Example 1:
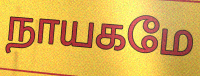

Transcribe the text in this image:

நாயகமே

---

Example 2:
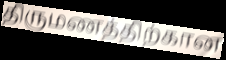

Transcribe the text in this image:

திருமணத்திற்கான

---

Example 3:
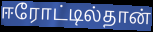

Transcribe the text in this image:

ஈரோட்டில்தான்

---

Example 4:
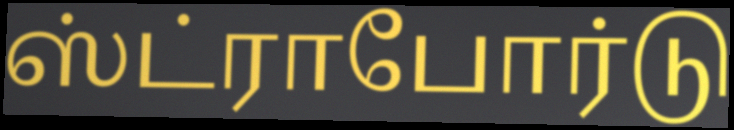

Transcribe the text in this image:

ஸ்ட்ராபோர்டு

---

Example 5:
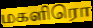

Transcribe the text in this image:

மகளிரொ